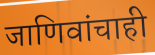
जाणिवांचाही